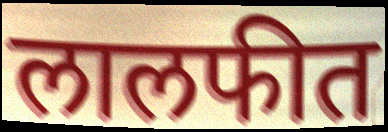
लालफीत